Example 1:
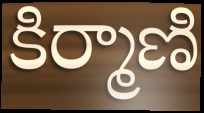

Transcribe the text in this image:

కిర్మాణి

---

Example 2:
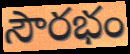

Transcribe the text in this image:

సౌరభం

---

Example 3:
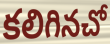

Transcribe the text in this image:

కలిగినచో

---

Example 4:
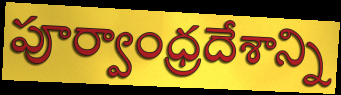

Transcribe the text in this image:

పూర్వాంధ్రదేశాన్ని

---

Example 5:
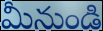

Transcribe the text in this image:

మీనుండి